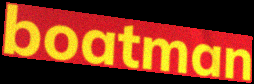
boatman